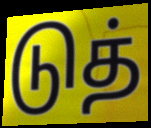
டுத்